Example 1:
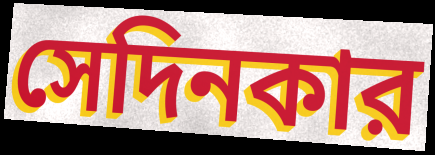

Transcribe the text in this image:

সেদিনকার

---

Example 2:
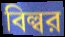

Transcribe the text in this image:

বিল্বর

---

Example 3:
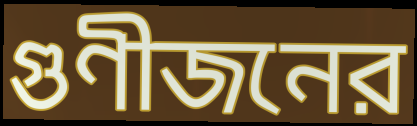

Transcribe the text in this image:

গুণীজনের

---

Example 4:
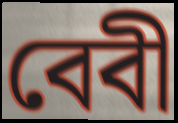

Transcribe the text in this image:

বেবী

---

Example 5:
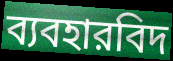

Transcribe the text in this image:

ব্যবহারবিদ